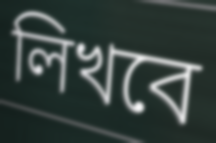
লিখবে